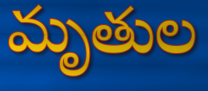
మృతుల